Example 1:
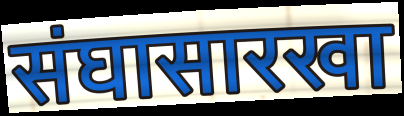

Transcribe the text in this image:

संघासारखा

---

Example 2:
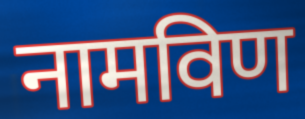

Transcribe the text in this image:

नामविण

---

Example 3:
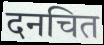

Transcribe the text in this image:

दनचित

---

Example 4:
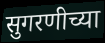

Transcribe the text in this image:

सुगरणीच्या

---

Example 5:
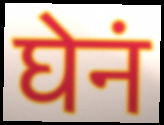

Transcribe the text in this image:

घेनं